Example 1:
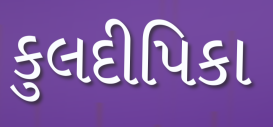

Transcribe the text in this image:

કુલદીપિકા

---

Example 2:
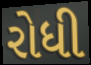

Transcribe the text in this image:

રોધી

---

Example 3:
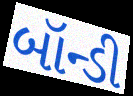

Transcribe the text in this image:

બૉન્ડી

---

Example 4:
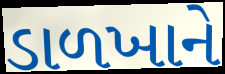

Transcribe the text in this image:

ડાળખાને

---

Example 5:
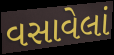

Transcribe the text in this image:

વસાવેલાં